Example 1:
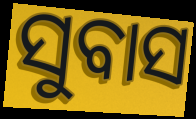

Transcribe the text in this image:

ସୁବାସ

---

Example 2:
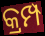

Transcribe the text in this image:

କ୍ରମ୍ପ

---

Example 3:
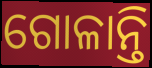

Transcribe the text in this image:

ଗୋଳାନ୍ତି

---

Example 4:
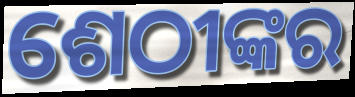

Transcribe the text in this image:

ଶେଠୀଙ୍କର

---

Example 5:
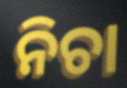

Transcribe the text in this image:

ନିଚା